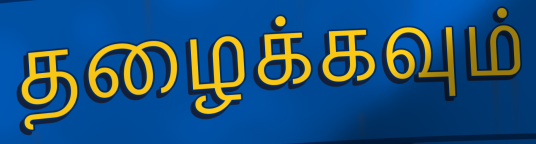
தழைக்கவும்